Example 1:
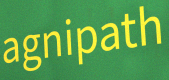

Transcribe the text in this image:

agnipath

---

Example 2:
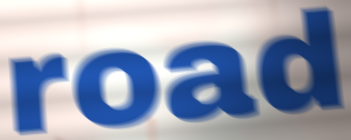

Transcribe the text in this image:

road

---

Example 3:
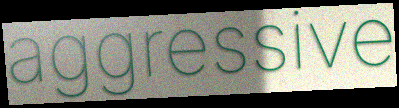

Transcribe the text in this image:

aggressive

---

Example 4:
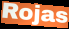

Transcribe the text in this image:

Rojas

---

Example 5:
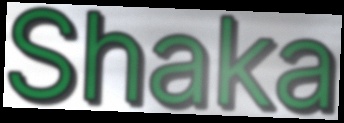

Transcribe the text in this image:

Shaka